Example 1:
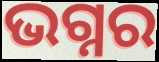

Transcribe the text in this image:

ଭଗ୍ନର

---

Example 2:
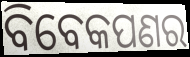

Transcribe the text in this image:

ବିବେକପଣର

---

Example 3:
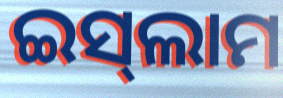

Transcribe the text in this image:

ଇସ୍‌ଲାମ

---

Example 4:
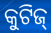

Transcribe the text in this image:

କୁଟିଜ୍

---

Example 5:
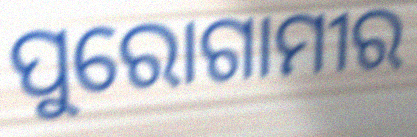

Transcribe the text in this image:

ପୁରୋଗାମୀର